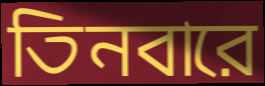
তিনবারে